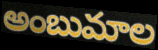
అంబుమాల